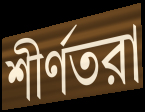
শীর্ণতরা